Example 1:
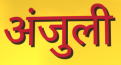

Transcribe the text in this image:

अंजुली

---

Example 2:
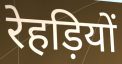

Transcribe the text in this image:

रेहड़ियों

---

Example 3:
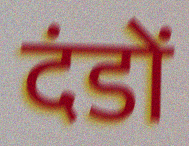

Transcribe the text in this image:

दंडों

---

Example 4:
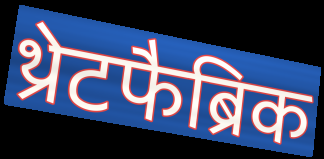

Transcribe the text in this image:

थ्रेटफैब्रिक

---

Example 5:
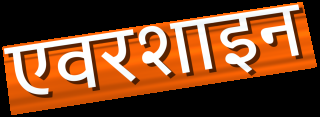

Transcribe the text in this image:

एवरशाइन